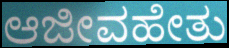
ಆಜೀವಹೇತು